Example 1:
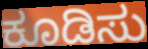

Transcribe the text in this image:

ಕೂಡಿಸು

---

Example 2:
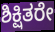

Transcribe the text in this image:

ಶಿಕ್ಷಿತರೇ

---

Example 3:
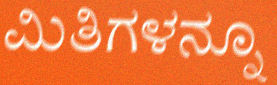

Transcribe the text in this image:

ಮಿತಿಗಳನ್ನೂ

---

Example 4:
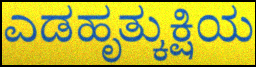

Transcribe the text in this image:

ಎಡಹೃತ್ಕುಕ್ಷಿಯ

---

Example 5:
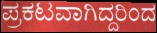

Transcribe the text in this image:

ಪ್ರಕಟವಾಗಿದ್ದರಿಂದ